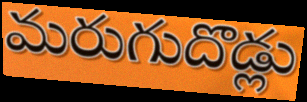
మరుగుదొడ్లు